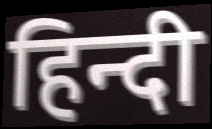
हिन्दी